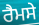
ਰੈਮਸੇ